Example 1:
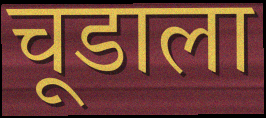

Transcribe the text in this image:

चूडाला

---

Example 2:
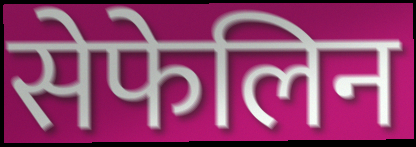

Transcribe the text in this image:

सेफेलिन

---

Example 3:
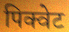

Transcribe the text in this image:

पिक्वेट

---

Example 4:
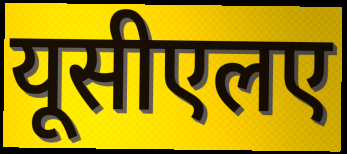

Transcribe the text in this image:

यूसीएलए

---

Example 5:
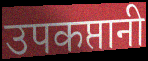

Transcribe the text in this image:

उपकप्तानी